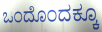
ಒಂದೊಂದಕ್ಕೂ